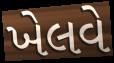
ખેલવે